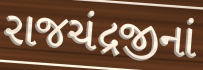
રાજચંદ્રજીનાં